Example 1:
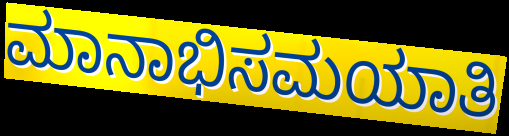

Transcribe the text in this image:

ಮಾನಾಭಿಸಮಯಾತಿ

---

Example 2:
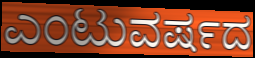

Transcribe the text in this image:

ಎಂಟುವರ್ಷದ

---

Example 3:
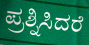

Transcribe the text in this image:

ಪ್ರಶ್ನಿಸಿದರೆ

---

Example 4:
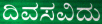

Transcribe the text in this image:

ದಿವಸವಿದು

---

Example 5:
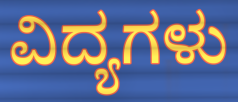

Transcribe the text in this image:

ವಿದ್ಯಗಳು